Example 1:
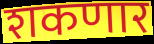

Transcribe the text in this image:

शकणार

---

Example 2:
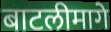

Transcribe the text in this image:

बाटलीमागे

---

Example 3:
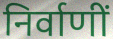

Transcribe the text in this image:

निर्वाणीं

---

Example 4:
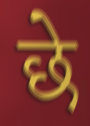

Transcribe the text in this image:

छे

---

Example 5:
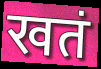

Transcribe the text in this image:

खतं